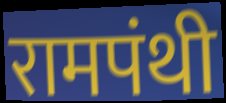
रामपंथी